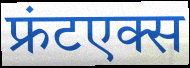
फ्रंटएक्स